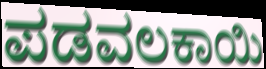
ಪಡವಲಕಾಯಿ